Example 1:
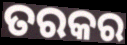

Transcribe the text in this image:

ତରକର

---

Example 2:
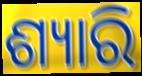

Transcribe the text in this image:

ଶ୍ୟାରି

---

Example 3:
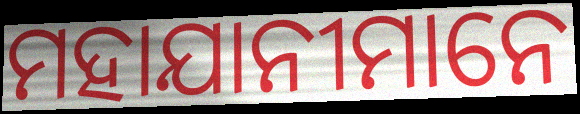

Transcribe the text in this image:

ମହାଯାନୀମାନେ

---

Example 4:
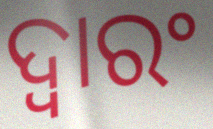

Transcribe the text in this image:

ଦ୍ୱାରଂ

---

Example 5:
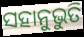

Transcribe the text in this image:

ସହାନୁଭୁତି